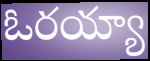
ఓరయ్యా